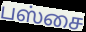
பஸ்சை